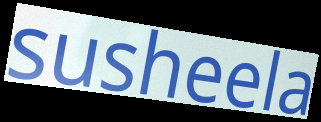
susheela